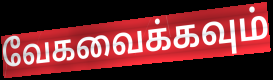
வேகவைக்கவும்